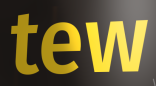
tew